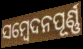
ସମ୍ବେଦନପୂର୍ଣ୍ଣ